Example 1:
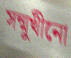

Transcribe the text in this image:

সন্মুখীনো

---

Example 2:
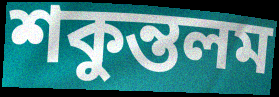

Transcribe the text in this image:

শকুন্তলম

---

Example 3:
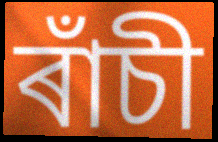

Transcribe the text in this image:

ৰাঁচী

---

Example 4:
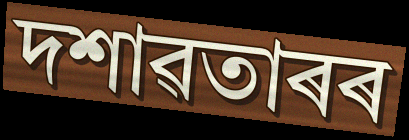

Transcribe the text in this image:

দশাৱতাৰৰ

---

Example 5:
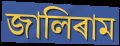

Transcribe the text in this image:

জালিৰাম